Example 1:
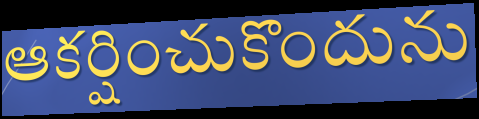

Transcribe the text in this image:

ఆకర్షించుకొందును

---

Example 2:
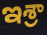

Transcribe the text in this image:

ఇశ్రా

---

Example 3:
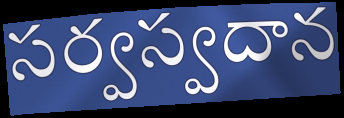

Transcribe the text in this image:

సర్వస్వదాన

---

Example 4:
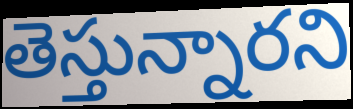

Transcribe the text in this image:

తెస్తున్నారని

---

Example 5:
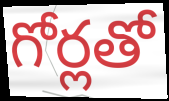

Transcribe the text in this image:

గోర్లతో